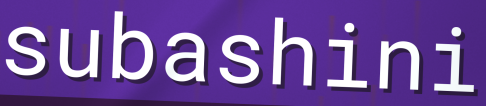
subashini